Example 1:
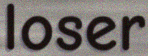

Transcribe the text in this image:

loser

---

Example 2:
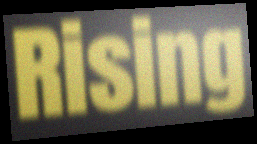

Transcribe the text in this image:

Rising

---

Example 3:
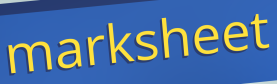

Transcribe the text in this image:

marksheet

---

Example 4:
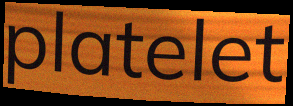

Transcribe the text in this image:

platelet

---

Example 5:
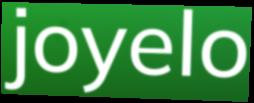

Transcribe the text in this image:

joyelo